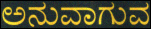
ಅನುವಾಗುವ